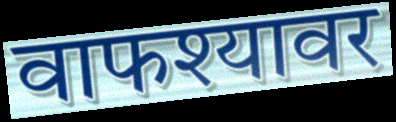
वाफश्यावर